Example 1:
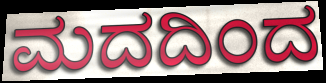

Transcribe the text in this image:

ಮದದಿಂದ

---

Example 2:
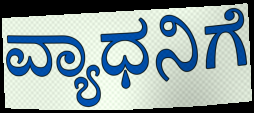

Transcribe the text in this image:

ವ್ಯಾಧನಿಗೆ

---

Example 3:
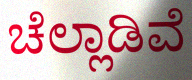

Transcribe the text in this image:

ಚೆಲ್ಲಾಡಿವೆ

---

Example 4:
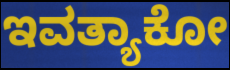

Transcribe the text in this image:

ಇವತ್ಯಾಕೋ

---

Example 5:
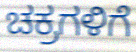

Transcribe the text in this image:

ಚಕ್ರಗಳಿಗೆ